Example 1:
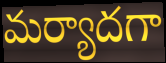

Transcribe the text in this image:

మర్యాదగా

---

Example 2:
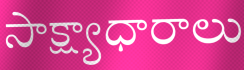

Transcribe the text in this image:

సాక్ష్యాధారాలు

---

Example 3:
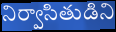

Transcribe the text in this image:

నిర్వాసితుడిని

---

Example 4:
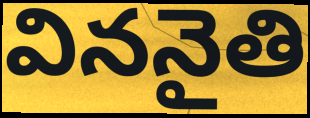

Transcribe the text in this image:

విననైతి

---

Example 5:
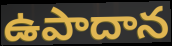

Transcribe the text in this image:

ఉపాదాన